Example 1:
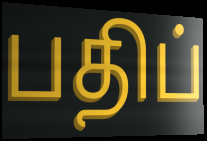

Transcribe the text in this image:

பதிப்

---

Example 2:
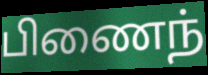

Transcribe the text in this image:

பிணைந்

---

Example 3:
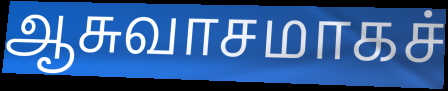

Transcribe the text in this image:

ஆசுவாசமாகச்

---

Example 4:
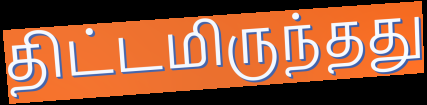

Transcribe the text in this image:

திட்டமிருந்தது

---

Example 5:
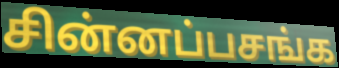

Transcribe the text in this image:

சின்னப்பசங்க